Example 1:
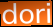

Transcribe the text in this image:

dori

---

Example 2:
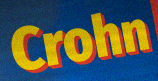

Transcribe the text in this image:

Crohn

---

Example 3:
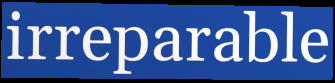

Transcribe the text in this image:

irreparable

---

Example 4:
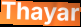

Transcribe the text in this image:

Thayar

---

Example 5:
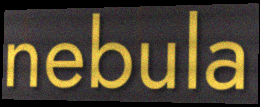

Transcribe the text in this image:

nebula